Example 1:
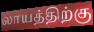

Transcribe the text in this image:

லாயத்திற்கு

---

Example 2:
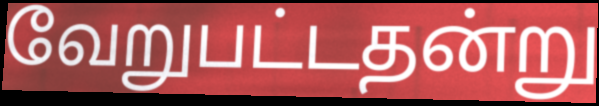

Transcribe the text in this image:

வேறுபட்டதன்று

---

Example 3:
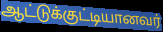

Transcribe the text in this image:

ஆட்டுக்குட்டியானவர்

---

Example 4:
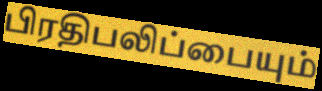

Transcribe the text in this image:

பிரதிபலிப்பையும்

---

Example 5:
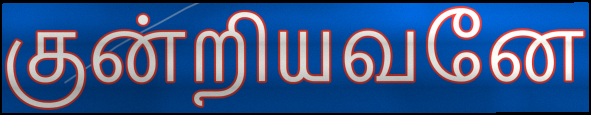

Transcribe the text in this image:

குன்றியவனே